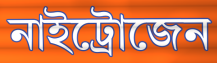
নাইট্রোজেন